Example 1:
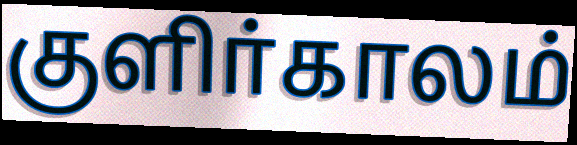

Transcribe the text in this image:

குளிர்காலம்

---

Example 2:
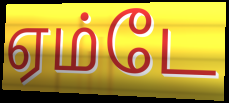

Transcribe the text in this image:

ஏம்டே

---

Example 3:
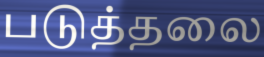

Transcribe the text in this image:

படுத்தலை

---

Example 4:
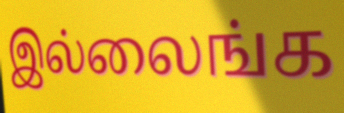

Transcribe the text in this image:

இல்லைங்க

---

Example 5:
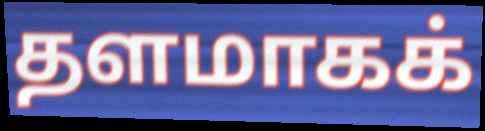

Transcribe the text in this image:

தளமாகக்